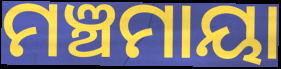
ମଞ୍ଚମାୟା